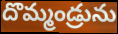
దొమ్మండ్రును